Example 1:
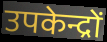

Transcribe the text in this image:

उपकेन्द्रों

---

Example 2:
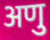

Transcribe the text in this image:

अणु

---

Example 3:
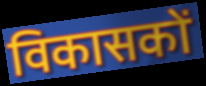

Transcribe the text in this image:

विकासकों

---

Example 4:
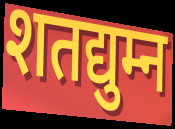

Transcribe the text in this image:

शतद्युम्न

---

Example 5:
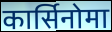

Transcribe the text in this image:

कार्सिनोमा